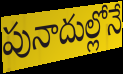
పునాదుల్లోనే